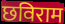
छविराम